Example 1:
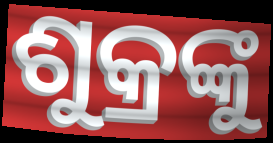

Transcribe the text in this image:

ଶୁକ୍ରଙ୍କୁ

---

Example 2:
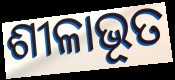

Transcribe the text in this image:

ଶୀଳାଭୂତ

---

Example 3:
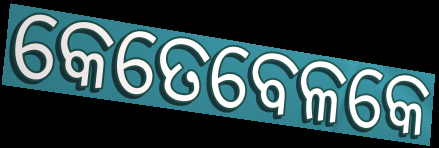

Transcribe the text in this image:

କେତେବେଳକେ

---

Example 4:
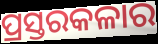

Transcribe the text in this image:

ପ୍ରସ୍ତରକଳାର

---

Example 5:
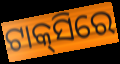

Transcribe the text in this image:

ଟାକ୍‌ସିରେ